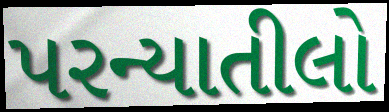
પરન્યાતીલો